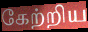
கேற்றிய